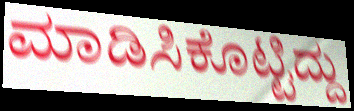
ಮಾಡಿಸಿಕೊಟ್ಟಿದ್ದು